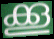
ക്കൂ